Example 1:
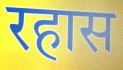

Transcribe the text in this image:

रहास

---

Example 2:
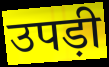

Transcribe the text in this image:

उपड़ी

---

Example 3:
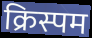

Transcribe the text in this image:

क्रिस्पम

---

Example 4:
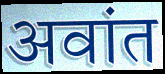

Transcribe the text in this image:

अवांत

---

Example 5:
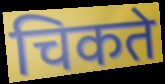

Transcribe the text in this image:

चिकते